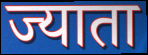
ज्याता